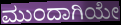
ಮುಂದಾಗಿಯೇ